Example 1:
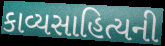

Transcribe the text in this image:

કાવ્યસાહિત્યની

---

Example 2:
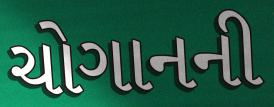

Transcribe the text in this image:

ચોગાનની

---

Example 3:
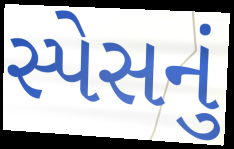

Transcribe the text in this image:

સ્પેસનું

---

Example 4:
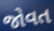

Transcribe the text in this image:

જોવત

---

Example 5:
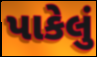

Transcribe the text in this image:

પાકેલું